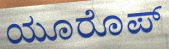
ಯೂರೊಪ್